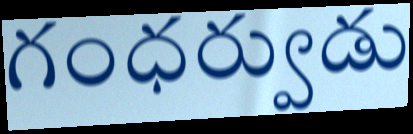
గంధర్వుడు